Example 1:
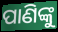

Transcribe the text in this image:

ପାଣିଙ୍କୁ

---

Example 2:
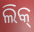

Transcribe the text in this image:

ଲିକ୍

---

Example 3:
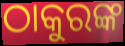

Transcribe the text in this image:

ଠାକୁରଙ୍କ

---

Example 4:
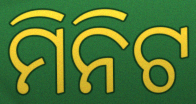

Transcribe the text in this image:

ମିନିଟ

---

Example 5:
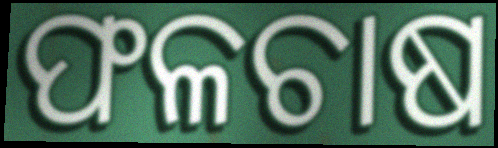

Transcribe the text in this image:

ଫଳଚାଷ